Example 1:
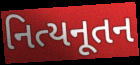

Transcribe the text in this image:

નિત્યનૂતન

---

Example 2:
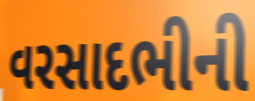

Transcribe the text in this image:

વરસાદભીની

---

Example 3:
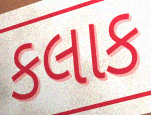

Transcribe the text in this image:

કલાક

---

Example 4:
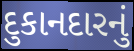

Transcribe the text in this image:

દુકાનદારનું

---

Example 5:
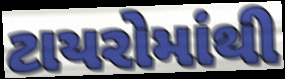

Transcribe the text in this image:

ટાયરોમાંથી